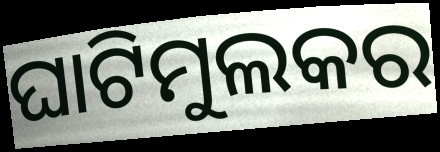
ଘାଟିମୁଲକର